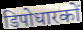
डिपोधारकों